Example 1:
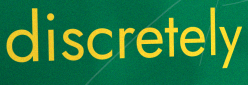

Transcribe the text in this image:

discretely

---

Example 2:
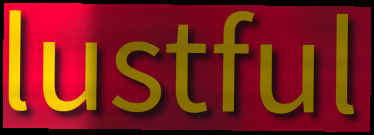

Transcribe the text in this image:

lustful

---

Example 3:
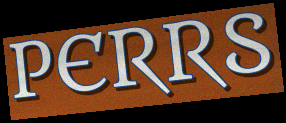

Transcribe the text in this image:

PERRS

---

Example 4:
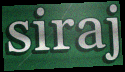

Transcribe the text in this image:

siraj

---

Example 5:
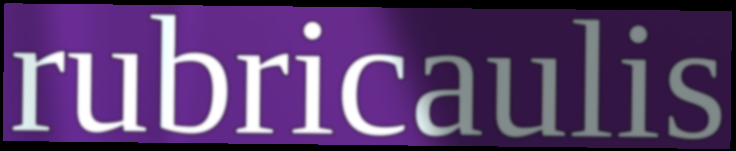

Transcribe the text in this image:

rubricaulis